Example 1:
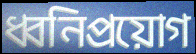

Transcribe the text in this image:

ধ্বনিপ্রয়োগ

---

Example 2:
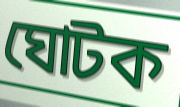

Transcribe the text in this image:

ঘোটক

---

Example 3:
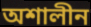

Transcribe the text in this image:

অশালীন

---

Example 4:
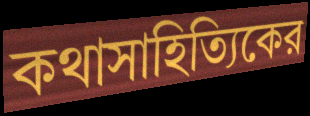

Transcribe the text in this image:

কথাসাহিত্যিকের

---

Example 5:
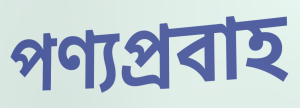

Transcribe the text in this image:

পণ্যপ্রবাহ